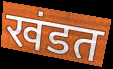
खंडत